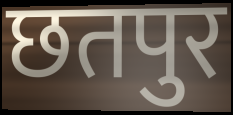
छतपुर